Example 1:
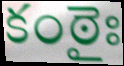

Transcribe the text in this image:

కంఠైః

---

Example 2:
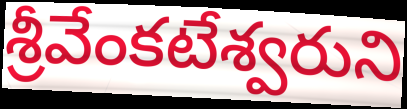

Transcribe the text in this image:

శ్రీవేంకటేశ్వరుని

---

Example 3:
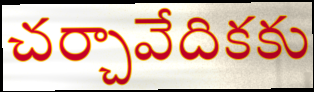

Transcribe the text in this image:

చర్చావేదికకు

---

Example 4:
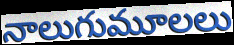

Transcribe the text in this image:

నాలుగుమూలలు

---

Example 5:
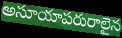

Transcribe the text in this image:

అసూయాపరురాలైన